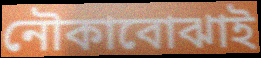
নৌকাবোঝাই